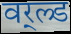
वर्ल्ड